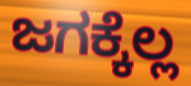
ಜಗಕ್ಕೆಲ್ಲ